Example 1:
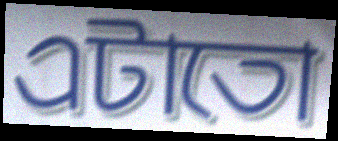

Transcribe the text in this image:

এটাতো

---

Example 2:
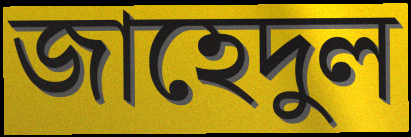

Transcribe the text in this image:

জাহেদুল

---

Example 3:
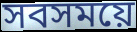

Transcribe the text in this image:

সবসময়ে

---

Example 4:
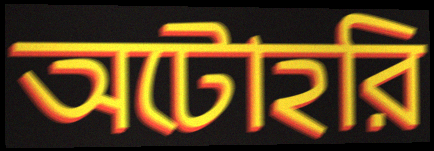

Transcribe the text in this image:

অটোহরি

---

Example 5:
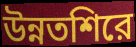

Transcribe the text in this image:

উন্নতশিরে